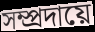
সম্প্রদায়ে